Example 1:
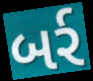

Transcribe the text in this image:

બર્ર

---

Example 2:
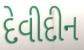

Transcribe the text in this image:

દેવીદીન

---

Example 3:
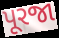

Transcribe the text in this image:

પૂરજા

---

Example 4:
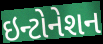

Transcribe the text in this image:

ઇન્ટોનેશન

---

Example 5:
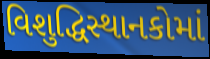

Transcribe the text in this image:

વિશુદ્ધિસ્થાનકોમાં